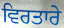
ਵਿਰਤਾਰੇ